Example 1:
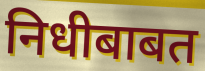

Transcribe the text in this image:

निधीबाबत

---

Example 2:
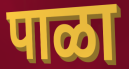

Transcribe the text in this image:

पाळा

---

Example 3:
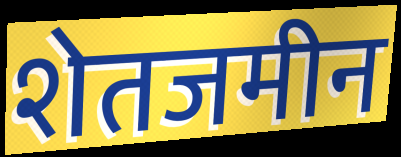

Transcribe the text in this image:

शेतजमीन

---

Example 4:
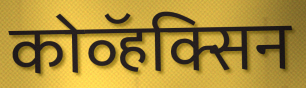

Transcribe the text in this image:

कोव्हॅक्सिन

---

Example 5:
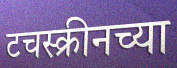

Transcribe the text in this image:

टचस्क्रीनच्या